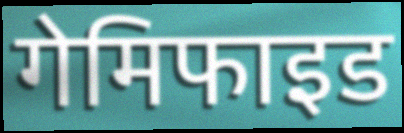
गेमिफाइड